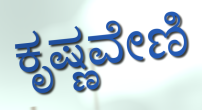
ಕೃಷ್ಣವೇಣಿ